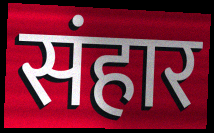
संहार